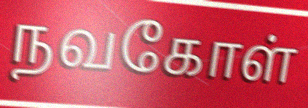
நவகோள்